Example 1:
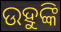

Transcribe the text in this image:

ଉହୁଙ୍କି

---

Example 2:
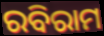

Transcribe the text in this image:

ରବିରାମ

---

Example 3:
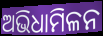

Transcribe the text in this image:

ଅଭିଧାମିଳନ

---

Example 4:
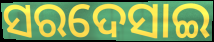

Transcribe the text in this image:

ସରଦେସାଇ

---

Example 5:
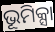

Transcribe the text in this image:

ଭୂମିକ୍ସା